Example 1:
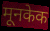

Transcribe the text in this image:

मूनकेक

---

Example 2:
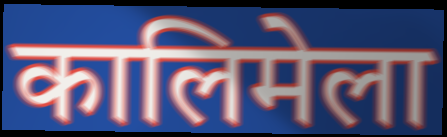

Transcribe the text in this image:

कालिमेला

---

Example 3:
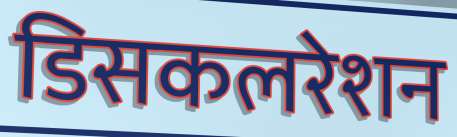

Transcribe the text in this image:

डिसकलरेशन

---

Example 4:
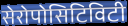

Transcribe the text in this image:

सेरोपोसिटिविटी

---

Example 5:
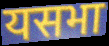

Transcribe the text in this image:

यसभा